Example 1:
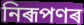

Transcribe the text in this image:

নিৰূপণৰ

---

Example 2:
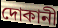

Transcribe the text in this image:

দোকানী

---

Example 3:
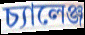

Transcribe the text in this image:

চ্যালেঞ্জ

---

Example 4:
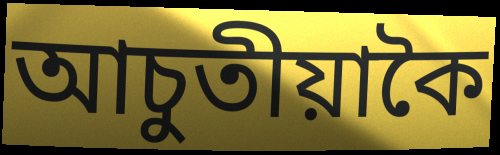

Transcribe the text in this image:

আচুতীয়াকৈ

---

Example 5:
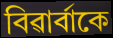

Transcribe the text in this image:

বিৱাৰ্বাকে